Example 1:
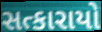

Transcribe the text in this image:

સત્કારાયો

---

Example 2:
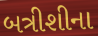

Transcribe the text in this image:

બત્રીશીના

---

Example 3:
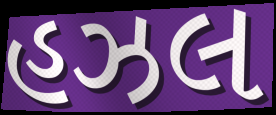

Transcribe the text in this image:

હઝલ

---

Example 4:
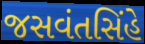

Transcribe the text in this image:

જસવંતસિંહે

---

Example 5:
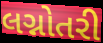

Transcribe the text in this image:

લગ્નોતરી